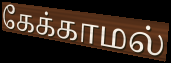
கேக்காமல்